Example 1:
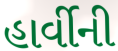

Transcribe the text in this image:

હાર્વીની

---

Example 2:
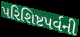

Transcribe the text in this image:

પરિશિષ્ટપર્વની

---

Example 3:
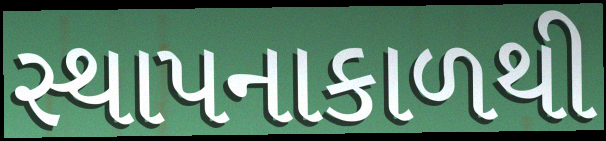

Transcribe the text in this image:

સ્થાપનાકાળથી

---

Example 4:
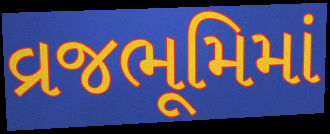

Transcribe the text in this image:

વ્રજભૂમિમાં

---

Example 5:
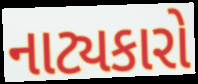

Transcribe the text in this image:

નાટ્યકારો